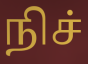
நிச்